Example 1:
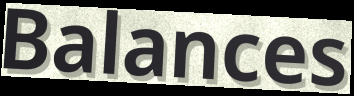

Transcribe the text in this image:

Balances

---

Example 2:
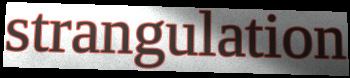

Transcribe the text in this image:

strangulation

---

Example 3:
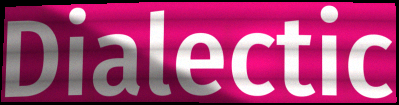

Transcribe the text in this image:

Dialectic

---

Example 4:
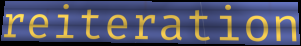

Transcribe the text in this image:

reiteration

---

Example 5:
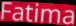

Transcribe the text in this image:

Fatima